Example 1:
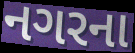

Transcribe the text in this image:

નગરના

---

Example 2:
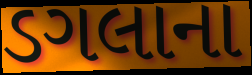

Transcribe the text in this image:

ડગલાના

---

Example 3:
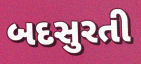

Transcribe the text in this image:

બદસુરતી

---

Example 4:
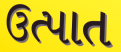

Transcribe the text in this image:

ઉત્પાત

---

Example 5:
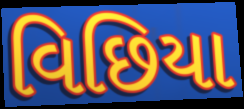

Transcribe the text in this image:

વિછિયા